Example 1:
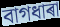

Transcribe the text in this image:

বাগধাৰা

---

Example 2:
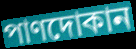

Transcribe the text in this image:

পাণদোকান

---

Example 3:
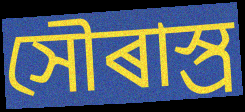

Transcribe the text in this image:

সৌৰাস্ত্ৰ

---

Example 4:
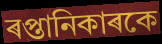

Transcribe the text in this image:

ৰপ্তানিকাৰকে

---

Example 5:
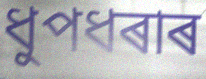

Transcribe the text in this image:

ধুপধৰাৰ